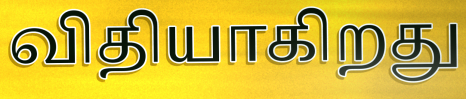
விதியாகிறது